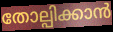
തോല്പിക്കാൻ